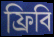
ফ্রিবি